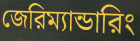
জেরিম্যান্ডারিং